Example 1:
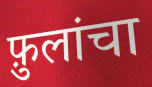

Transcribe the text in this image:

फ़ुलांचा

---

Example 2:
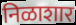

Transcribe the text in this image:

निळाशार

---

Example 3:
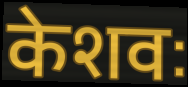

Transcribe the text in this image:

केशवः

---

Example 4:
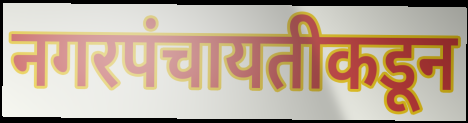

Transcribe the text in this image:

नगरपंचायतीकडून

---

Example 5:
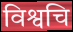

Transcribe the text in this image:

विश्वचि